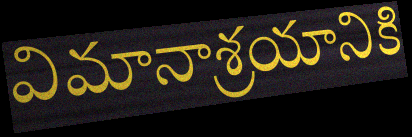
విమానాశ్రయానికి